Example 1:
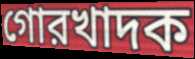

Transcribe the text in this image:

গোরখাদক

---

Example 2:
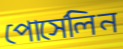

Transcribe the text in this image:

পোর্সেলিন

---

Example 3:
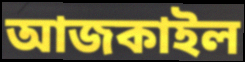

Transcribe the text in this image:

আজকাইল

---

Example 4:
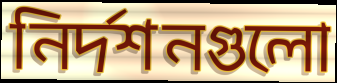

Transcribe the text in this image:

নির্দশনগুলো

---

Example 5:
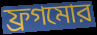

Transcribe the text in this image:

ফ্রগমোর